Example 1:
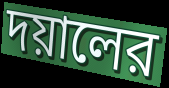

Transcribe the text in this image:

দয়ালের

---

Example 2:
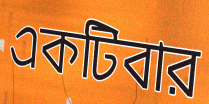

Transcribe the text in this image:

একটিবার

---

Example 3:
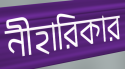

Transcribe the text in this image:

নীহারিকার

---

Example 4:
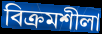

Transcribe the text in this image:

বিক্রমশীলা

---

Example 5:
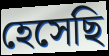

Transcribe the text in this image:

হেসেছি